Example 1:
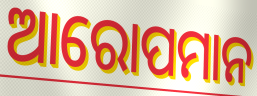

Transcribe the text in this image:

ଆରୋପମାନ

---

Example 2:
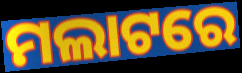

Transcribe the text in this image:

ମଲାଟରେ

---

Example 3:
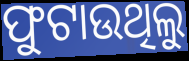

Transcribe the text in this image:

ଫୁଟାଉଥିଲୁ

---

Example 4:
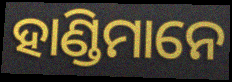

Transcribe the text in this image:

ହାଣ୍ଡିମାନେ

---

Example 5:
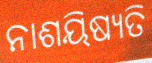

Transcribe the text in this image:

ନାଶୟିଷ୍ୟତି